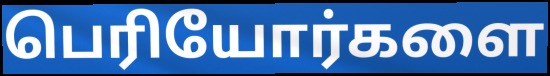
பெரியோர்களை